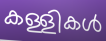
കള്ളികൾ